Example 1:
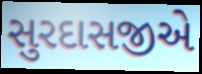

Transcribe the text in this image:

સુરદાસજીએ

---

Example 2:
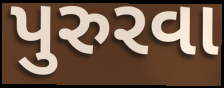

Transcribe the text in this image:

પુરુરવા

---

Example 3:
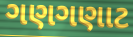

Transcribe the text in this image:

ગણગણાટ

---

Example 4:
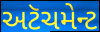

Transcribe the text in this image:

અટૅચમેન્ટ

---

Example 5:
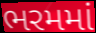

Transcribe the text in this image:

ભરમમાં